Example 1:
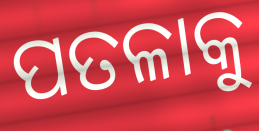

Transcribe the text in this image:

ପତଳାକୁ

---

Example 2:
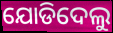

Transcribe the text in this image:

ଯୋଡିଦେଲୁ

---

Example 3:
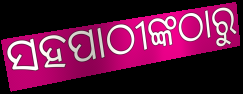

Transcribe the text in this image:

ସହପାଠୀଙ୍କଠାରୁ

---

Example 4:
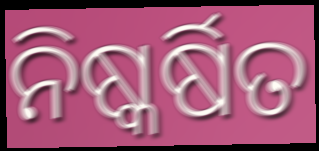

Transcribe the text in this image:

ନିଷ୍କର୍ଷିତ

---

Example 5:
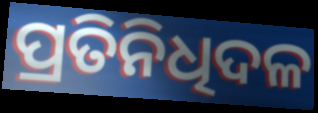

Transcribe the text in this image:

ପ୍ରତିନିଧିଦଳ